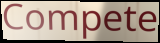
Compete